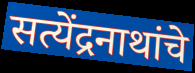
सत्येंद्रनाथांचे